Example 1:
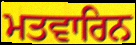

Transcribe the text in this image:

ਮਤਵਾਰਿਨ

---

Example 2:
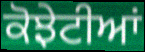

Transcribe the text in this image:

ਕੋਝੇਟੀਆਂ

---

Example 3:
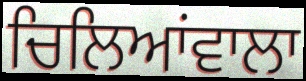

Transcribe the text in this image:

ਚਿਲਿਆਂਵਾਲਾ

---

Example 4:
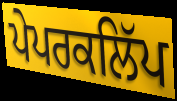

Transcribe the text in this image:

ਪੇਪਰਕਲਿੱਪ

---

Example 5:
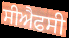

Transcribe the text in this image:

ਸੀਐਫਸੀ